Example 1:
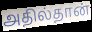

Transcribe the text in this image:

அதில்தான்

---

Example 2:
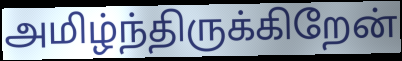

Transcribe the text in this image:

அமிழ்ந்திருக்கிறேன்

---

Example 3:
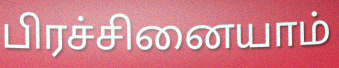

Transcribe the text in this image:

பிரச்சினையாம்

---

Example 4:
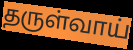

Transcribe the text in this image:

தருள்வாய்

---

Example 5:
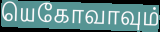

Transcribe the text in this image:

யெகோவாவும்